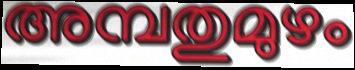
അമ്പതുമുഴം